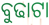
ବୁଢାଟା